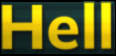
Hell